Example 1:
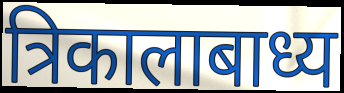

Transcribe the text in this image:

त्रिकालाबाध्य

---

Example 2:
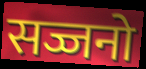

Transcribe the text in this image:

सज्जनो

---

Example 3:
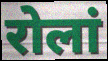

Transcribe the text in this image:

रोलां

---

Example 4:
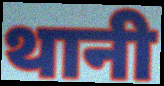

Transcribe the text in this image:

थानी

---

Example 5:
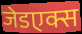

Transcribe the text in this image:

जेडएक्स